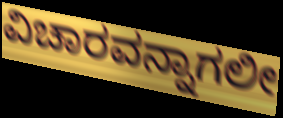
ವಿಚಾರವನ್ನಾಗಲೀ